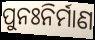
ପୁନଃନିର୍ମାଣ